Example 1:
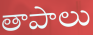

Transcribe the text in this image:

తాపాలు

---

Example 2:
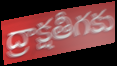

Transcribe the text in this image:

ద్రాక్షతీగకు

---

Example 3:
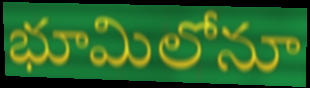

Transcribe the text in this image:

భూమిలోనూ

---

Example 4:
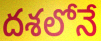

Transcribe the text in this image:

దశలోనే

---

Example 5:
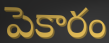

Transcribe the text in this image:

పెకారం